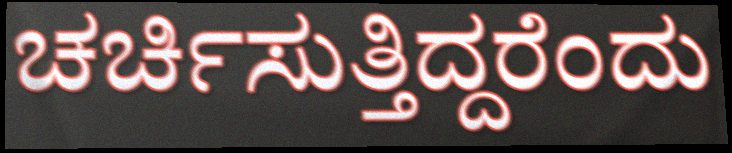
ಚರ್ಚಿಸುತ್ತಿದ್ದರೆಂದು